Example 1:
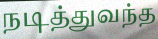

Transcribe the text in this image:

நடித்துவந்த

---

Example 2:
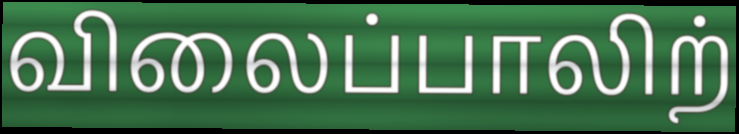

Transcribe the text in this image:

விலைப்பாலிற்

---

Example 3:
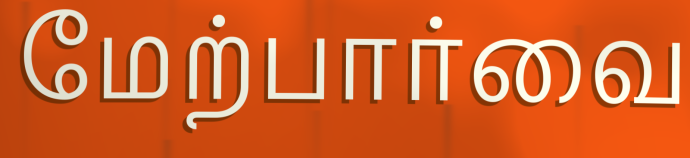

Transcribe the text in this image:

மேற்பார்வை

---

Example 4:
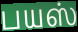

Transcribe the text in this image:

பயஸ்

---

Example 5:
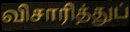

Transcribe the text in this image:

விசாரித்துப்